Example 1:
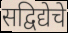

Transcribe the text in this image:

सद्विद्येचे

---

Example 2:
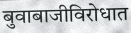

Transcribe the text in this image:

बुवाबाजीविरोधात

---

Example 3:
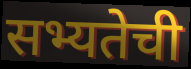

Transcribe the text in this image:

सभ्यतेची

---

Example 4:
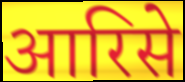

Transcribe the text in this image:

आरिसे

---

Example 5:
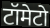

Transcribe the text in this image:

टॉमेटो